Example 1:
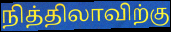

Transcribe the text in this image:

நித்திலாவிற்கு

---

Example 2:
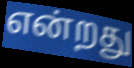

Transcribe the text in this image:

என்றது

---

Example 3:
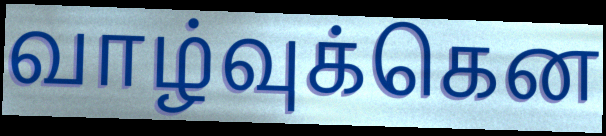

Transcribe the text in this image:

வாழ்வுக்கென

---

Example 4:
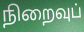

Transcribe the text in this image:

நிறைவுப்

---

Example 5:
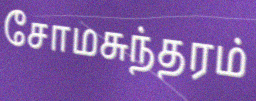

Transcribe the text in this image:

சோமசுந்தரம்